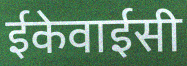
ईकेवाईसी